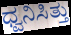
ಧ್ವನಿಸಿತ್ತು